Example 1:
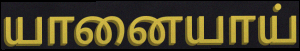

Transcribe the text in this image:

யானையாய்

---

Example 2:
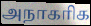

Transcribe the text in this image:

அநாகரிக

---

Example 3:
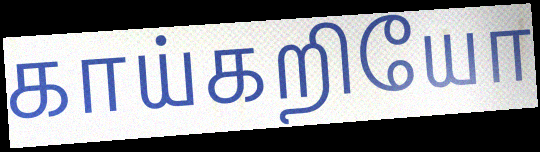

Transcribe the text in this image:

காய்கறியோ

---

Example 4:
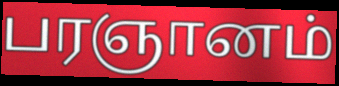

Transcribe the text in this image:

பரஞானம்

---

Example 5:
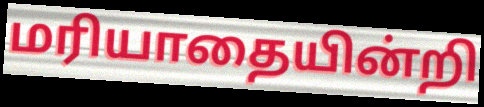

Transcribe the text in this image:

மரியாதையின்றி